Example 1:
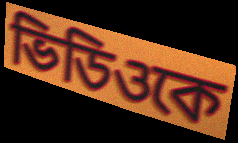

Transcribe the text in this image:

ভিডিওকে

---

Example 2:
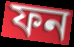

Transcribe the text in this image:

ফন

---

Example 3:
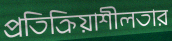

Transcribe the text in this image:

প্রতিক্রিয়াশীলতার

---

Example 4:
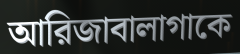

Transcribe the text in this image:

আরিজাবালাগাকে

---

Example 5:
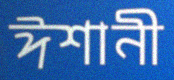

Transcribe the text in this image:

ঈশানী